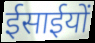
ईसाईयों